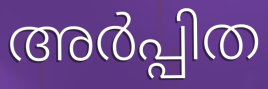
അർപ്പിത